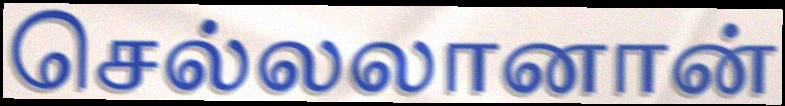
செல்லலானான்